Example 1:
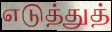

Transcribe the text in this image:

எடுத்துத்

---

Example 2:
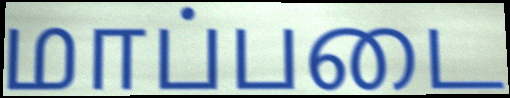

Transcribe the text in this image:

மாப்படை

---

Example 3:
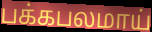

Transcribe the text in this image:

பக்கபலமாய்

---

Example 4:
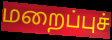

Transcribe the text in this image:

மறைப்புச்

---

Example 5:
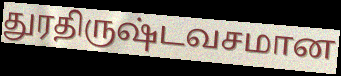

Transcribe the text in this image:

துரதிருஷ்டவசமான